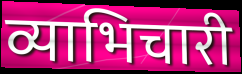
व्याभिचारी